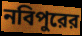
নবিপুরের